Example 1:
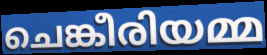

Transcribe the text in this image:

ചെങ്കീരിയമ്മ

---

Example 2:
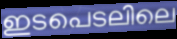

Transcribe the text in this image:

ഇടപെടലിലെ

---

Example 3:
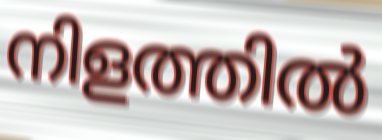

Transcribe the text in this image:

നിളത്തിൽ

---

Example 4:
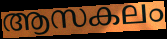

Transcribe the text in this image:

ആസകലം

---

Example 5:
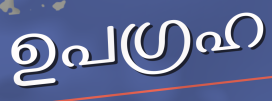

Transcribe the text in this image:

ഉപഗ്രഹ